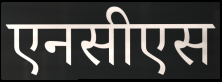
एनसीएस